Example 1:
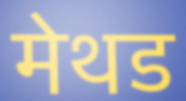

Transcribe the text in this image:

मेथड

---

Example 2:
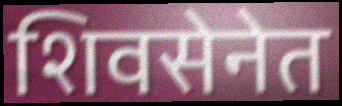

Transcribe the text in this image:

शिवसेनेत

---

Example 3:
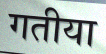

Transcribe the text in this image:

गतीया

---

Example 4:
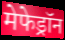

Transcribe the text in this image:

मेफेड्रॉन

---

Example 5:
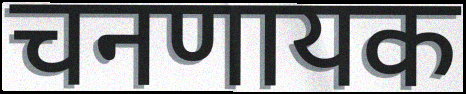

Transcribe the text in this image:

चनणायक